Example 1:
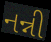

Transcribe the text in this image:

નન્ની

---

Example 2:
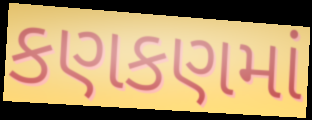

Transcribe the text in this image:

કણકણમાં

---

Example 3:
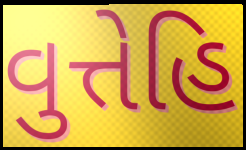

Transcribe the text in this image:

વુત્તેહિ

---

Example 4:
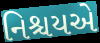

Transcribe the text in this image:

નિશ્ચયએ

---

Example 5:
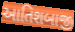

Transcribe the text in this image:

આતિશબાજી